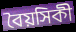
বৈয়সিকী